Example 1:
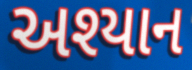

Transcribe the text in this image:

અશ્યાન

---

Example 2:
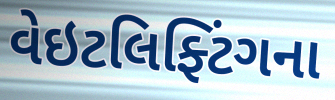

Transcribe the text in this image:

વેઇટલિફ્ટિંગના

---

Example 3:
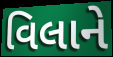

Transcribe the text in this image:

વિલાને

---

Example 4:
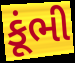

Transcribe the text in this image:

કૂંભી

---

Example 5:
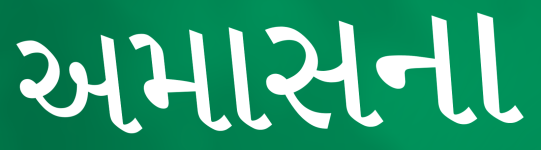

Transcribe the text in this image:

અમાસના